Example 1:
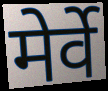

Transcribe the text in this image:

मेर्वे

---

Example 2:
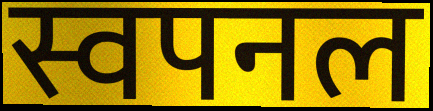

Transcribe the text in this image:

स्वपनल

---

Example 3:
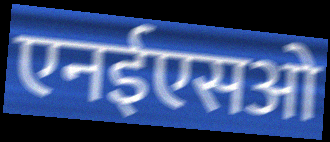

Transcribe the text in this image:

एनईएसओ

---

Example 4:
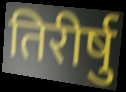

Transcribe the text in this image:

तिरीर्षु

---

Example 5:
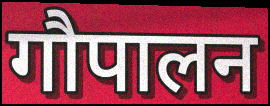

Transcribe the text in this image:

गौपालन